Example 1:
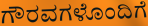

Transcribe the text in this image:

ಗೌರವಗಳೊಂದಿಗೆ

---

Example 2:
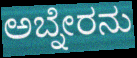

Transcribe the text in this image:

ಅಬ್ನೇರನು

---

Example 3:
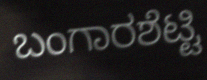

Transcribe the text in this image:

ಬಂಗಾರಶೆಟ್ಟಿ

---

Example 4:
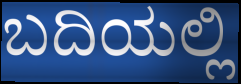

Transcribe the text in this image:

ಬದಿಯಲ್ಲಿ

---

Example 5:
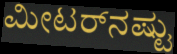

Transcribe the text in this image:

ಮೀಟರ್‌ನಷ್ಟು